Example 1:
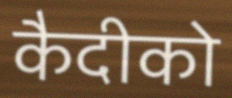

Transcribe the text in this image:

कैदीको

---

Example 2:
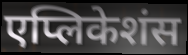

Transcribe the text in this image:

एप्लिकेशंस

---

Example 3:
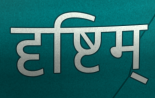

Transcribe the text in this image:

दृष्टिम्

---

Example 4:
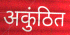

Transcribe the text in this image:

अकुंठित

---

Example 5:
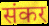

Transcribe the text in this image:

संकर